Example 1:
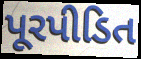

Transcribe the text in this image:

પૂરપીડિત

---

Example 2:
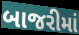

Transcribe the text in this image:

બાજરીમાં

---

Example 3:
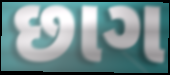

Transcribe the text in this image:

છાગ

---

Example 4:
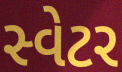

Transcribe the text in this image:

સ્વેટર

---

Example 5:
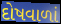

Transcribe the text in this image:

દોષવાળાં